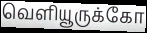
வெளியூருக்கோ